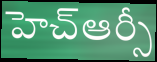
హెచ్ఆర్సీ